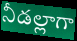
నీడల్లాగా